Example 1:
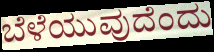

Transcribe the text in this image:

ಬೆಳೆಯುವುದೆಂದು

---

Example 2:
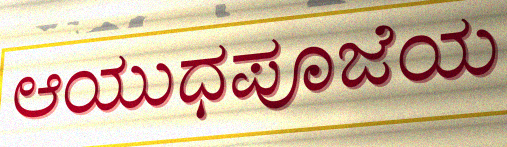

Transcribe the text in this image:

ಆಯುಧಪೂಜೆಯ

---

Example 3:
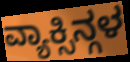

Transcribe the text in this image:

ವ್ಯಾಕ್ಸಿನ್ಗಳ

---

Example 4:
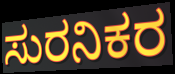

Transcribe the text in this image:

ಸುರನಿಕರ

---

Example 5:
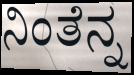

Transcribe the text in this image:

ನಿಂತೆನ್ನ